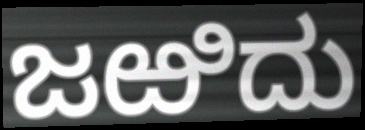
ಜಱಿದು